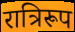
रात्रिरूप